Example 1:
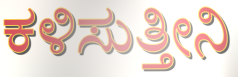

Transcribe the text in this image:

ಕಳಿಸುತ್ತೀನಿ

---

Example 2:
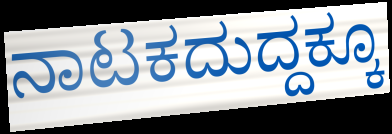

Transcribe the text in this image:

ನಾಟಕದುದ್ದಕ್ಕೂ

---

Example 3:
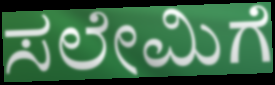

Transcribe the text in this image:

ಸಲೇಮಿಗೆ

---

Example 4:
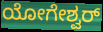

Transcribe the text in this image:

ಯೋಗೇಶ್ವರ್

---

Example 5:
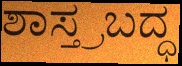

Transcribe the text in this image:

ಶಾಸ್ತ್ರಬದ್ಧ